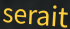
serait